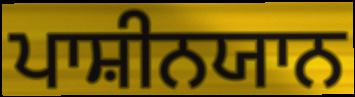
ਪਾਸ਼ੀਨਯਾਨ